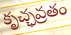
కృచ్ఛవ్రతం